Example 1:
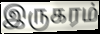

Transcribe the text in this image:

இருகரம்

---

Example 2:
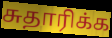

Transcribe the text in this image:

சுதாரிக்க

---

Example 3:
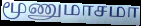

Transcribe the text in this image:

மூணுமாசமா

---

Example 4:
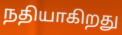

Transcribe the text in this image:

நதியாகிறது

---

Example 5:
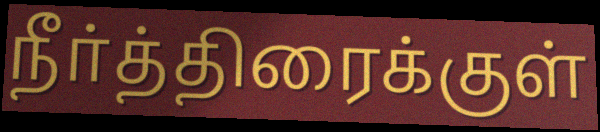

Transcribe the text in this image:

நீர்த்திரைக்குள்